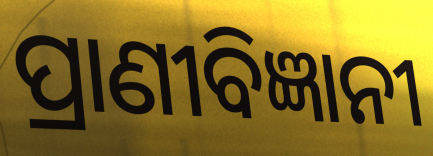
ପ୍ରାଣୀବିଜ୍ଞାନୀ